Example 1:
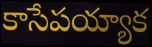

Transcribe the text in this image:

కాసేపయ్యాక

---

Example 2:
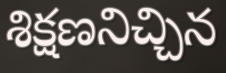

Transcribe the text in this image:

శిక్షణనిచ్చిన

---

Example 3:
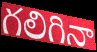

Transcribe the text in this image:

గలిగినా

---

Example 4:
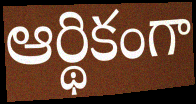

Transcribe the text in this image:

ఆర్థికంగా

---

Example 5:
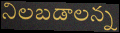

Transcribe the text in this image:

నిలబడాలన్న